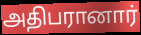
அதிபரானார்